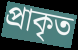
প্ৰাকৃত